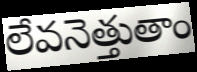
లేవనెత్తుతాం